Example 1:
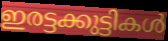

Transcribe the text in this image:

ഇരട്ടക്കുട്ടികൾ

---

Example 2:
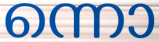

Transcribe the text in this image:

ന്നൊ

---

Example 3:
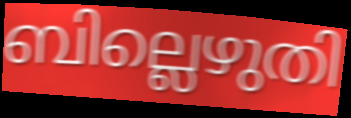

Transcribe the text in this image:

ബില്ലെഴുതി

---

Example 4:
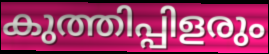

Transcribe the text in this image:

കുത്തിപ്പിളരും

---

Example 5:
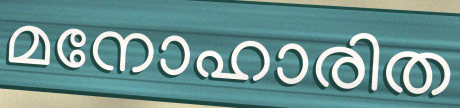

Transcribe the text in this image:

മനോഹാരിത